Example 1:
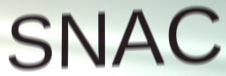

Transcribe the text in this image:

SNAC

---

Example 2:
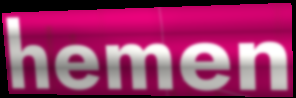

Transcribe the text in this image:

hemen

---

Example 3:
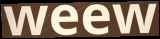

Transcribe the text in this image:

weew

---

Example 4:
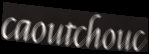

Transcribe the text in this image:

caoutchouc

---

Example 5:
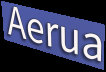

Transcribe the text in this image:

Aerua